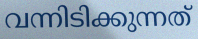
വന്നിടിക്കുന്നത്